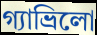
গ্যাভ্রিলো